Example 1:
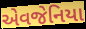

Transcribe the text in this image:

એવજેનિયા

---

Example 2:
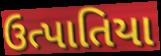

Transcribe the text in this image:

ઉત્પાતિયા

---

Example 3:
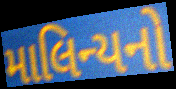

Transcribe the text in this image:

માલિન્યનો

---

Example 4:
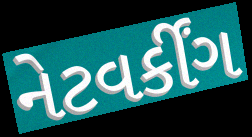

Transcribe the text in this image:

નેટવર્કીંગ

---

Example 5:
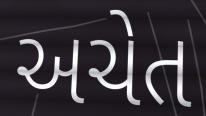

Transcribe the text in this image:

અચેત